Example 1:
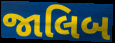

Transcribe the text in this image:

જાલિબ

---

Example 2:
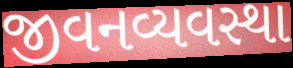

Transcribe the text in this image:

જીવનવ્યવસ્થા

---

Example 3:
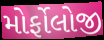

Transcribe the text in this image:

મોર્ફોલોજી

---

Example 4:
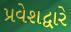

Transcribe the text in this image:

પ્રવેશદ્વારે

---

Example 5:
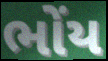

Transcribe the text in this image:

ભોંય